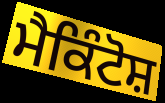
ਮੈਕਿੰਟੋਸ਼